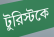
টুরিস্টকে